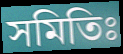
সমিতিঃ